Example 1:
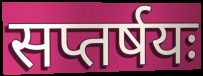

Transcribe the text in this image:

सप्तर्षयः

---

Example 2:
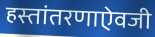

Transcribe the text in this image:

हस्तांतरणाऐवजी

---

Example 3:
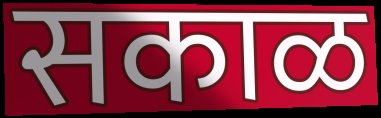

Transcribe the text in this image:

सकाळ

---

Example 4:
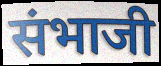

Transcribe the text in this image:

संभाजी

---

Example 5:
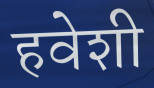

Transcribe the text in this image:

हवेशी